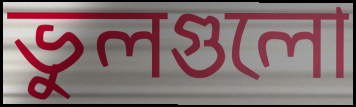
ভুলগুলো